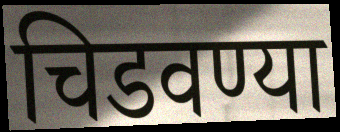
चिडवण्या